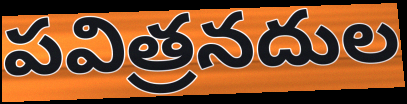
పవిత్రనదుల